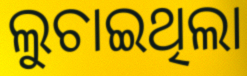
ଲୁଚାଇଥିଲା